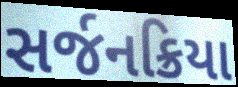
સર્જનક્રિયા